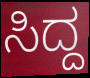
ಸಿದ್ದ